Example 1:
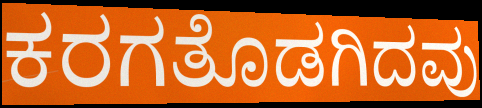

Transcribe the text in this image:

ಕರಗತೊಡಗಿದವು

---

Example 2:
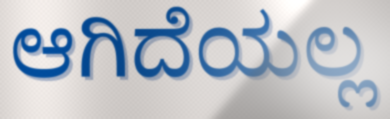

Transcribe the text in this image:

ಆಗಿದೆಯಲ್ಲ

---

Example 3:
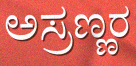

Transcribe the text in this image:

ಅಸ್ರಣ್ಣರ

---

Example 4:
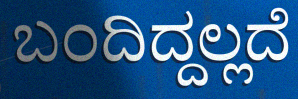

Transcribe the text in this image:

ಬಂದಿದ್ದಲ್ಲದೆ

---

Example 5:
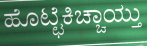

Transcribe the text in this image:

ಹೊಟ್ಟೆಕಿಚ್ಚಾಯ್ತು